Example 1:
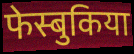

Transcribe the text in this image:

फेस्बुकिया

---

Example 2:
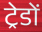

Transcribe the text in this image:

ट्रेडों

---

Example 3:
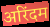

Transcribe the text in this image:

अरिंदम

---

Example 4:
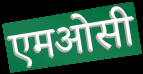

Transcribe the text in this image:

एमओसी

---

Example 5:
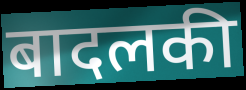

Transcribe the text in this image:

बादलकी